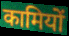
कामियों